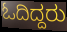
ಓದಿದ್ದರು